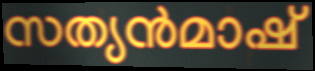
സത്യൻമാഷ്